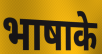
भाषाके